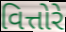
વિત્તોરે